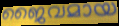
ജൈവമായ